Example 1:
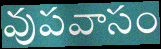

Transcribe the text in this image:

వుపవాసం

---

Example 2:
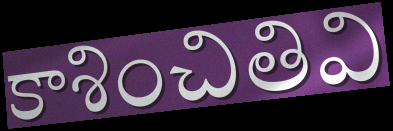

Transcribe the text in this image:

కాశించితివి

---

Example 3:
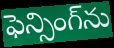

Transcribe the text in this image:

ఫెన్సింగ్‌ను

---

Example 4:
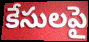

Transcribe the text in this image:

కేసులపై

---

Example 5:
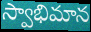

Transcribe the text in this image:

స్వాభిమాన